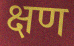
क्षण